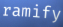
ramify